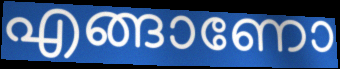
എങ്ങാണോ